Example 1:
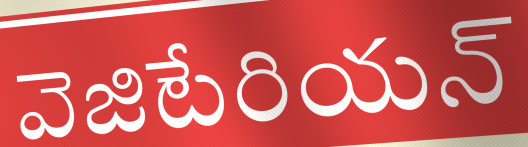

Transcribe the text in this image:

వెజిటేరియన్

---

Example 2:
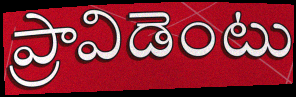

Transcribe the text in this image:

ప్రావిడెంటు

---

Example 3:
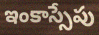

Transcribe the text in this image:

ఇంకాస్సేపు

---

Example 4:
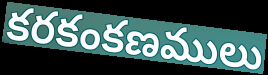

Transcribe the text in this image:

కరకంకణములు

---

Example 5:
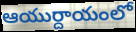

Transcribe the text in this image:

ఆయుర్దాయంలో